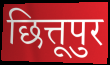
छित्तूपुर